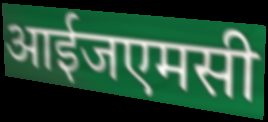
आईजएमसी